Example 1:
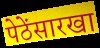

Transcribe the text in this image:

पेठेंसारखा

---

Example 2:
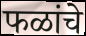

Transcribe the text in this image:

फळांचे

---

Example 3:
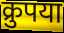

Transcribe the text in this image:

क्रुपया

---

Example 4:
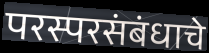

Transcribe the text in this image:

परस्परसंबंधाचे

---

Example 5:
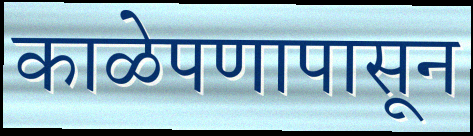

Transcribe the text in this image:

काळेपणापासून